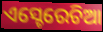
ଏସ୍ଚେରେଚିଆ